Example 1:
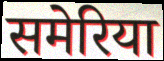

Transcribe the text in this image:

समेरिया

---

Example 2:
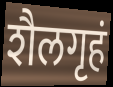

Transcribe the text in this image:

शैलगृहं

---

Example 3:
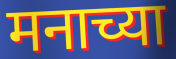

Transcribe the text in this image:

मनाच्‍या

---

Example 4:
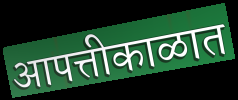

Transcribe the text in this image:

आपत्तीकाळात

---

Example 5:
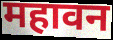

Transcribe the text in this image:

महावन